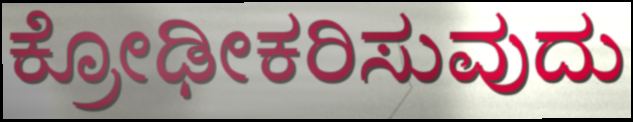
ಕ್ರೋಢೀಕರಿಸುವುದು